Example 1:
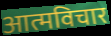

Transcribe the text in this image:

आत्मविचार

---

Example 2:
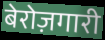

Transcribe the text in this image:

बेरोज़गारी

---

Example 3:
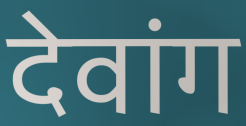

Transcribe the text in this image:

देवांग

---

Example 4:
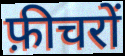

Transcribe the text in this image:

फ़ीचरों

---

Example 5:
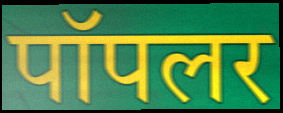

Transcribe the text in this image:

पॉपलर